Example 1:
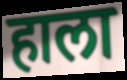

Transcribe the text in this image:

हाला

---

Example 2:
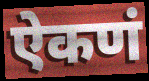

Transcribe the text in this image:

ऐकणं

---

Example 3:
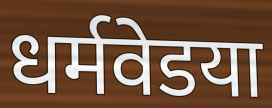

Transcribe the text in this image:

धर्मवेडया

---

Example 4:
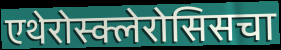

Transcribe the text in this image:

एथेरोस्क्लेरोसिसचा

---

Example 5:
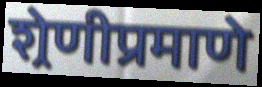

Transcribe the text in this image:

श्रेणीप्रमाणे